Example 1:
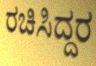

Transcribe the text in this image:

ರಚಿಸಿದ್ದರ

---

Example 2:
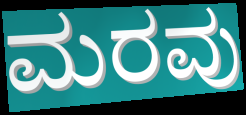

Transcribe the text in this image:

ಮರವು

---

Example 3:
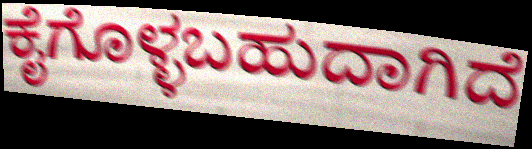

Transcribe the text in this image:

ಕೈಗೊಳ್ಳಬಹುದಾಗಿದೆ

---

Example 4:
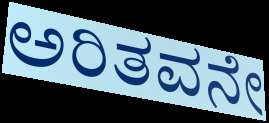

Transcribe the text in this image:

ಅರಿತವನೇ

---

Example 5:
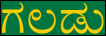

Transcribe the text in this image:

ಗಲಡು